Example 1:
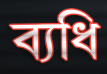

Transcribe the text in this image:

ব্যধি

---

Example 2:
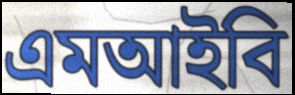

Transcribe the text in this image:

এমআইবি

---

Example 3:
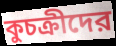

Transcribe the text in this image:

কুচক্রীদের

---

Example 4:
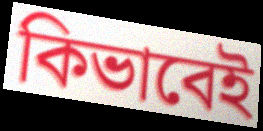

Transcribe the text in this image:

কিভাবেই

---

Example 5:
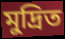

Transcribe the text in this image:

মুদ্রিত